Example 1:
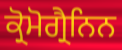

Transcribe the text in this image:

ਕ੍ਰੋਮੋਗ੍ਰੈਨਿਨ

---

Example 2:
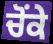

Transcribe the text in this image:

ਚੋਂਕੇ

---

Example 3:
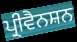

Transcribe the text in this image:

ਪ੍ਰੀਵੈਨਸ਼ਨ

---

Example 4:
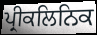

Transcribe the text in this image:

ਪ੍ਰੀਕਲਿਨਿਕ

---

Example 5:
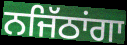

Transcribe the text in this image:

ਨਜਿੱਠਾਂਗਾ